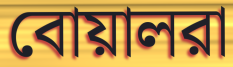
বোয়ালরা